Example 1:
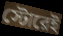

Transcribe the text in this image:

স্টোরেই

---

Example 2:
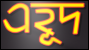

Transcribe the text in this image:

এহূদ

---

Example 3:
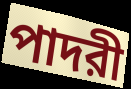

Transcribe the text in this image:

পাদরী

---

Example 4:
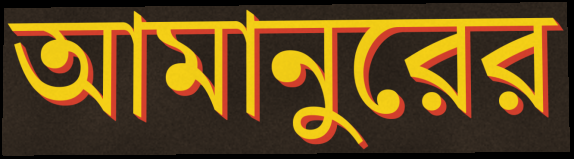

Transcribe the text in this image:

আমানুরের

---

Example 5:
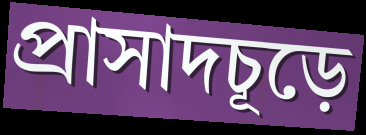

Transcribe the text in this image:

প্রাসাদচূড়ে